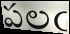
పలఁ